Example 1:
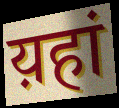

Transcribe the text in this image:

य़हां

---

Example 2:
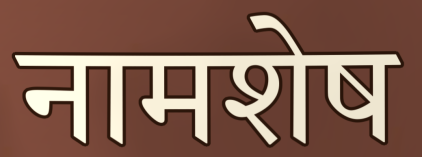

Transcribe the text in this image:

नामशेष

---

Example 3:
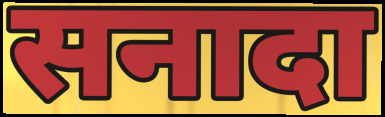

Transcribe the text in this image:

सनादा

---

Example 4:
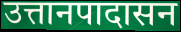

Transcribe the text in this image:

उत्तानपादासन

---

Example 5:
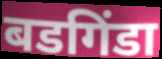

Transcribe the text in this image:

बडगिंडा